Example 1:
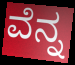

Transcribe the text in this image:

ವೆನ್ನ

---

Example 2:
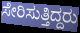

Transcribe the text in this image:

ಸೇರಿಸುತ್ತಿದ್ದರು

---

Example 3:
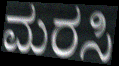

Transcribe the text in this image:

ಮರಸಿ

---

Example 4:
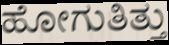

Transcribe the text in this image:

ಹೋಗುತಿತ್ತು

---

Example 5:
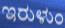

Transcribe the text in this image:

ಇರುಳುಂ